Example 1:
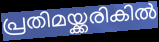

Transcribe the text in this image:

പ്രതിമയ്ക്കരികിൽ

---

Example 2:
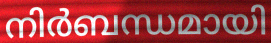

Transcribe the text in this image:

നിർബന്ധമായി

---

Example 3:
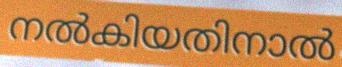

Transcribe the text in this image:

നൽകിയതിനാൽ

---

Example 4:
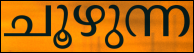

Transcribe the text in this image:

ചൂഴുന്ന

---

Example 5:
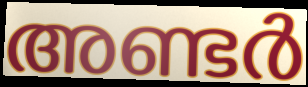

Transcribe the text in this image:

അണ്ടർ